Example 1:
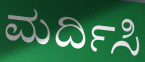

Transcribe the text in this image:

ಮರ್ದಿಸಿ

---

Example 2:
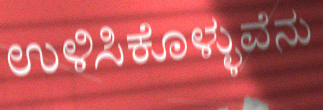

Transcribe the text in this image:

ಉಳಿಸಿಕೊಳ್ಳುವೆನು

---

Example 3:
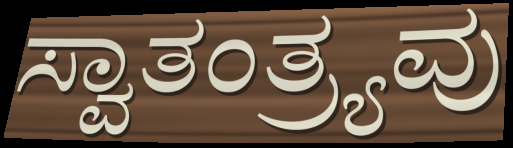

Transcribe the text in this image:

ಸ್ವಾತಂತ್ರ್ಯವು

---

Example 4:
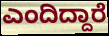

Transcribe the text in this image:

ಎಂದಿದ್ದಾರೆ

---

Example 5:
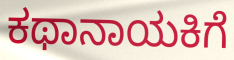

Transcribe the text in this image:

ಕಥಾನಾಯಕಿಗೆ